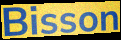
Bisson